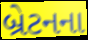
બ્રેટનના